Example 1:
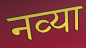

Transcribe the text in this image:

नव्‍या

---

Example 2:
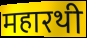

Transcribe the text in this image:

महारथी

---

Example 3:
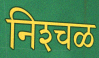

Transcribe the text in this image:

निश्‍चळ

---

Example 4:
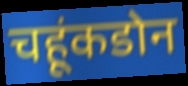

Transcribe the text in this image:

चहूंकडोन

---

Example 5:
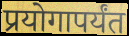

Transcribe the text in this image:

प्रयोगापर्यंत